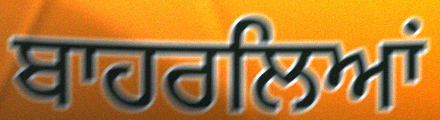
ਬਾਹਰਲਿਆਂ